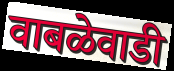
वाबळेवाडी